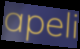
apeli